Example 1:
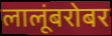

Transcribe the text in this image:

लालूंबरोबर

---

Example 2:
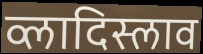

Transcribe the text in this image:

व्लादिस्लाव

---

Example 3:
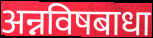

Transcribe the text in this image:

अन्नविषबाधा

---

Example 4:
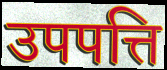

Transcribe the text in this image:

उपपत्ति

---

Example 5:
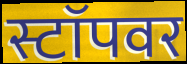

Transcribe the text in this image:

स्टॉपवर